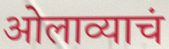
ओलाव्याचं